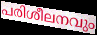
പരിശീലനവും